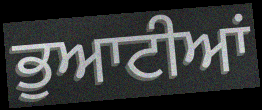
ਭੁਆਟੀਆਂ